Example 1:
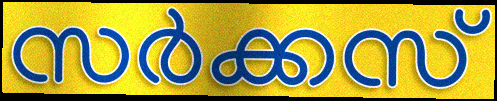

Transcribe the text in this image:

സർക്കസ്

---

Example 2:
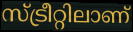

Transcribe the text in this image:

സ്ട്രീറ്റിലാണ്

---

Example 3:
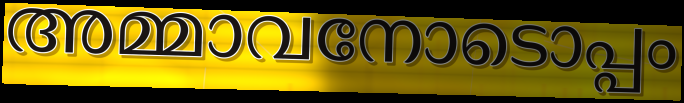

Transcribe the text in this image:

അമ്മാവനോടൊപ്പം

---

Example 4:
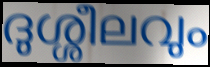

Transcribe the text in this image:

ദുശ്ശീലവും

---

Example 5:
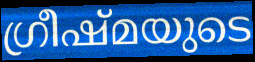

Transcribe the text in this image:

ഗ്രീഷ്മയുടെ